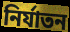
নিৰ্যাতন